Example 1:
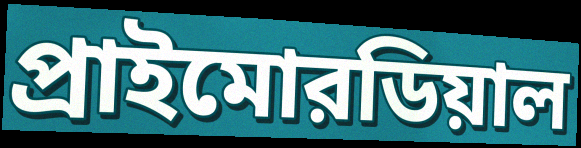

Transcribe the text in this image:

প্রাইমোরডিয়াল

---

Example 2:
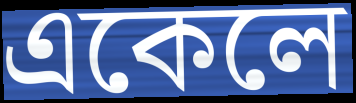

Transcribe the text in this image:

একেলে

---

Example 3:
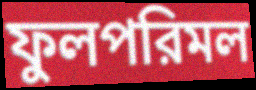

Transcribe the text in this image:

ফুলপরিমল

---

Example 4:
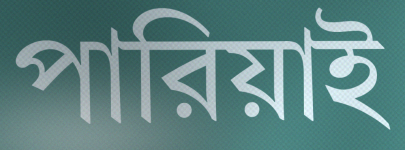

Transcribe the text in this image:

পারিয়াই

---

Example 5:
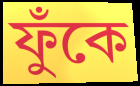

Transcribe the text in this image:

ফুঁকে